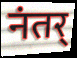
नंतर्